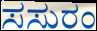
ಸಸುರಂ